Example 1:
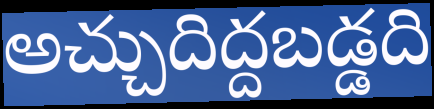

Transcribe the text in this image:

అచ్చుదిద్దబడ్డది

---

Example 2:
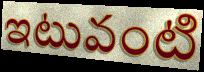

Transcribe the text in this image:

ఇటువంటి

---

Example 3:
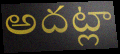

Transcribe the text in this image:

అదట్లా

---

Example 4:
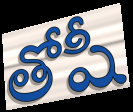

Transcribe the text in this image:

తోషీ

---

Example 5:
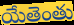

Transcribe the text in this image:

యేతెంతు